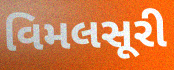
વિમલસૂરી